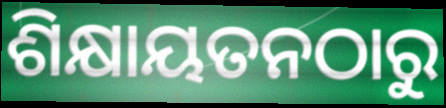
ଶିକ୍ଷାୟତନଠାରୁ